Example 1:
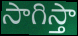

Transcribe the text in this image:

సాగిస్తా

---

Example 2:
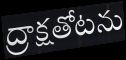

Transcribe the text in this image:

ద్రాక్షతోటను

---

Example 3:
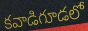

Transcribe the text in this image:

కవాడిగూడలో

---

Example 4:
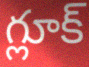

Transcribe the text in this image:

గ్లూక్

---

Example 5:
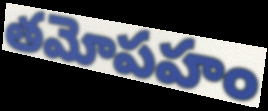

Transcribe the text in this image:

తమోపహం